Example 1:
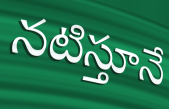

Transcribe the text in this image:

నటిస్తూనే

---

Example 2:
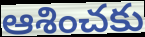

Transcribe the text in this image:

ఆశించకు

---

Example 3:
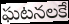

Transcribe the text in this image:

ఘటనలకే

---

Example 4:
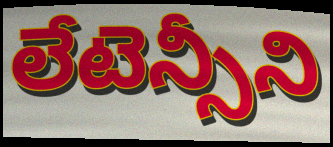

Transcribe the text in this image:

లేటెన్సీని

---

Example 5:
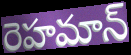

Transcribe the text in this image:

రెహమాన్